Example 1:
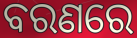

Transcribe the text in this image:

ବରଣରେ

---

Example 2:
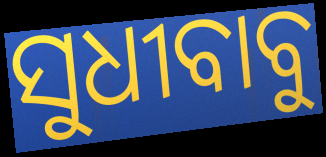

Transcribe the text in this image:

ସୁଧୀବାବୁ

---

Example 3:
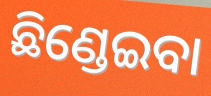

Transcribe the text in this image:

ଛିଣ୍ଡେଇବା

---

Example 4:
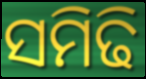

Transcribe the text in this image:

ସମିଢି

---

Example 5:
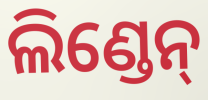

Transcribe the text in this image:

ଲିଣ୍ଡେନ୍